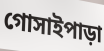
গোসাইপাড়া